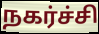
நகர்ச்சி